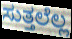
ಸುತ್ತಲೆಲ್ಲ